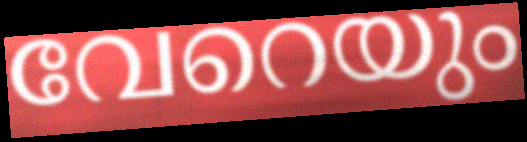
വേറെയും